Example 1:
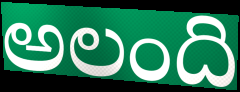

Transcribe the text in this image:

అలంది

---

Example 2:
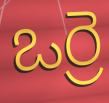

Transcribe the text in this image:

ఒర్రె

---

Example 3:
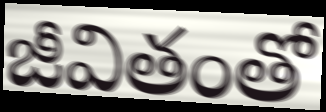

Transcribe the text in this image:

జీవితంతో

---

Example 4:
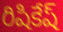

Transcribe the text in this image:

రిషికేష్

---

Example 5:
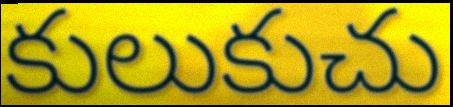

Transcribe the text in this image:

కులుకుచు